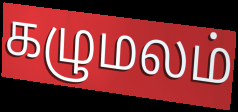
கழுமலம்